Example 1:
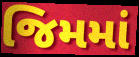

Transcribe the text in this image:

જિમમાં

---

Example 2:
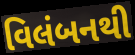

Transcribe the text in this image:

વિલંબનથી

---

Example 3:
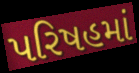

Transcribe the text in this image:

પરિષહમાં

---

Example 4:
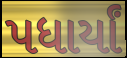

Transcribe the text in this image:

પધાર્યાં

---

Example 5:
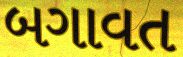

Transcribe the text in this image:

બગાવત